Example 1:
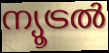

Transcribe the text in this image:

ന്യൂട്രൽ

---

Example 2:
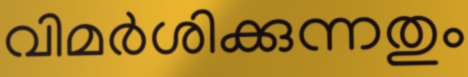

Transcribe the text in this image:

വിമർശിക്കുന്നതും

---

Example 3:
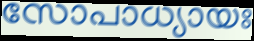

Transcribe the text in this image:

സോപാധ്യായഃ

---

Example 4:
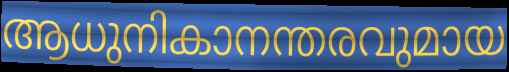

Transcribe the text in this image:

ആധുനികാനന്തരവുമായ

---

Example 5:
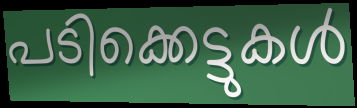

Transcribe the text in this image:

പടിക്കെട്ടുകൾ